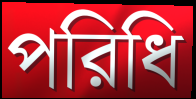
পরিধি